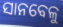
ସାନବେଳୁ